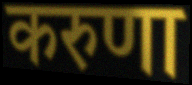
करुणा